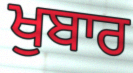
ਖੁਬਾਰ